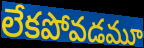
లేకపోవడమూ